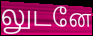
லுடனே